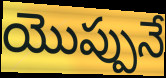
యొప్పునే